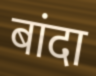
बांदा